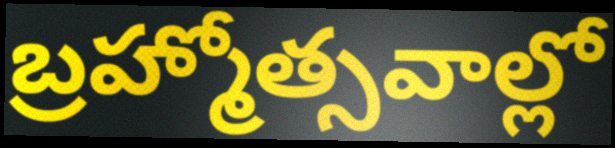
బ్రహ్మోత్సవాల్లో